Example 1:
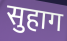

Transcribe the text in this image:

सुहाग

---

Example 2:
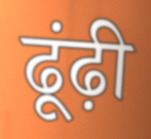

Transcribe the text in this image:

ढूंढ़ी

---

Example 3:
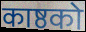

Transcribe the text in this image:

काष्ठको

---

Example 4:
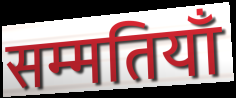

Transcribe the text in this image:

सम्मतियाँ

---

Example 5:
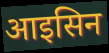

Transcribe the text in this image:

आइसिन